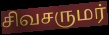
சிவசருமர்